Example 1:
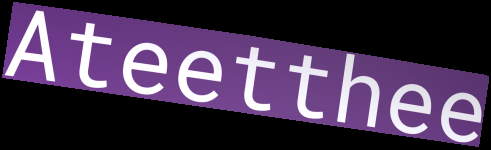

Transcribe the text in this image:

Ateetthee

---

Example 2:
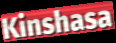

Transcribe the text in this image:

Kinshasa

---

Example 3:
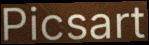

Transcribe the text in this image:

Picsart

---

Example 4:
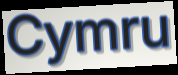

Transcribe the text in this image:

Cymru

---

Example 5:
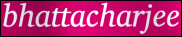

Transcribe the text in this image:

bhattacharjee